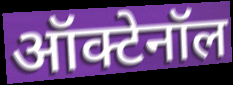
ऑक्टेनॉल